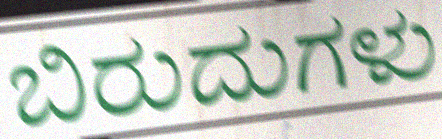
ಬಿರುದುಗಳು